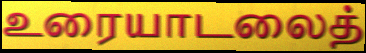
உரையாடலைத்